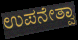
ಉಪನೇತ್ವಾ